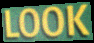
LOOK